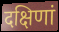
दक्षिणां